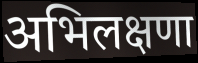
अभिलक्षणा